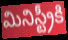
మినిస్ట్రీకి